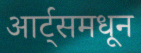
आर्ट्समधून